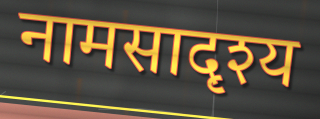
नामसादृश्य